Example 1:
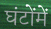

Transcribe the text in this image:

घंटोंमें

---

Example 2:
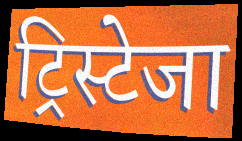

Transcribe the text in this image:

ट्रिस्टेजा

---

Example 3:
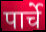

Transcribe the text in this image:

पार्चे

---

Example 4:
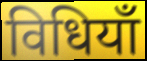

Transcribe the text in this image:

विधियाँ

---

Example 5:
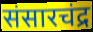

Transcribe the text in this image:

संसारचंद्र